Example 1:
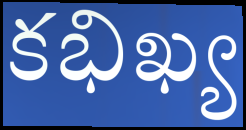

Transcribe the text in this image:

కభిఖ్య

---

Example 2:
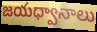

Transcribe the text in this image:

జయధ్వానాలు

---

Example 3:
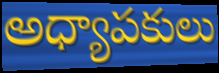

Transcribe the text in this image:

అధ్యాపకులు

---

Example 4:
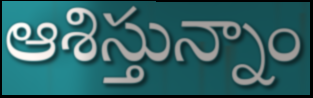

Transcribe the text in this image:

ఆశిస్తున్నాం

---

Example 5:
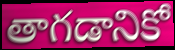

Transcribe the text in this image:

తాగడానికో